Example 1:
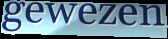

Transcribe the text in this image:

gewezen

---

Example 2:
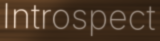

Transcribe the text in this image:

Introspect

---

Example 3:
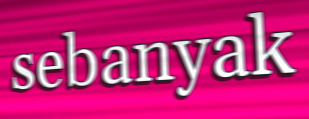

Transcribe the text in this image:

sebanyak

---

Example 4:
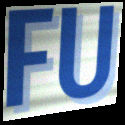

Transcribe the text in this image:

FU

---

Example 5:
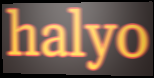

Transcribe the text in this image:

halyo